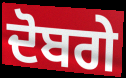
ਦੋਬਗੇ